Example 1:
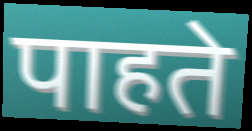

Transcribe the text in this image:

पाहते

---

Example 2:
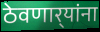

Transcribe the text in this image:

ठेवणार्‍यांना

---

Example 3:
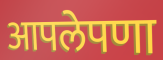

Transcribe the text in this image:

आपलेपणा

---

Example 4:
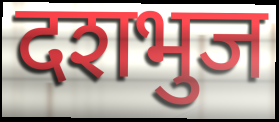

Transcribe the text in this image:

दशभुज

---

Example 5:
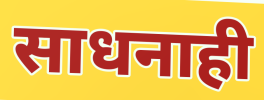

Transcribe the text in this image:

साधनाही